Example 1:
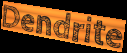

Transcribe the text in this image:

Dendrite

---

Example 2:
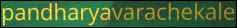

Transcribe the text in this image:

pandharyavarachekale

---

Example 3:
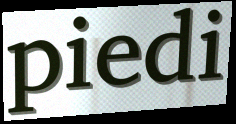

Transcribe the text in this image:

piedi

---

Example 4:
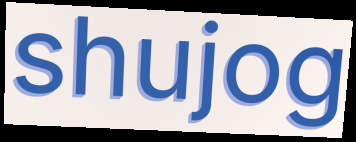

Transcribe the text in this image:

shujog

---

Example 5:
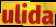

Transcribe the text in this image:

ulida